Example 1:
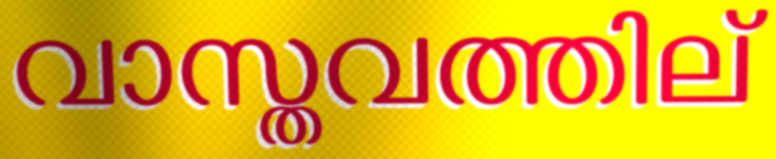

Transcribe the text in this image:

വാസ്തവത്തില്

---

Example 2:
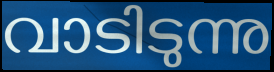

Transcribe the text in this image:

വാടിടുന്നു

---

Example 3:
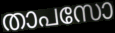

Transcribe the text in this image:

താപസോ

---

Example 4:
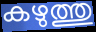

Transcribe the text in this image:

കഴുത്തു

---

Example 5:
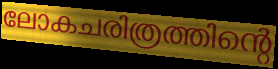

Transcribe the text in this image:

ലോകചരിത്രത്തിന്റെ